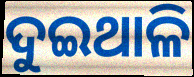
ଦୁଇଥାଳି